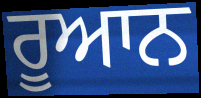
ਰੂਆਨ